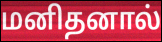
மனிதனால்